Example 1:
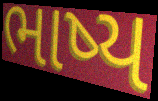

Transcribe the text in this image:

ભાષ્ય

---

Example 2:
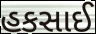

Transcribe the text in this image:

હકસાઈ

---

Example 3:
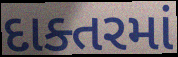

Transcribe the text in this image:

દાક્તરમાં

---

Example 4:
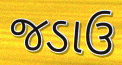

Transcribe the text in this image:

જડાઉ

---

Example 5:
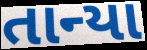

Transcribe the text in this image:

તાન્યા